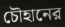
চৌহানের